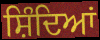
ਸ਼ਿੰਦਿਆਂ